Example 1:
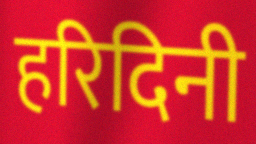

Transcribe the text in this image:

हरिदिनी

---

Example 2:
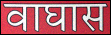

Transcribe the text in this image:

वाघास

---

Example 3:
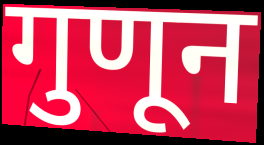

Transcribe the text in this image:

गुणून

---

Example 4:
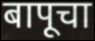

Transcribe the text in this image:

बापूचा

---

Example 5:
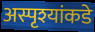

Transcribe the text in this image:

अस्पृश्यांकडे